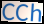
CCh